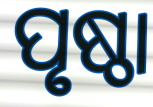
ପୃଷ୍ଠା